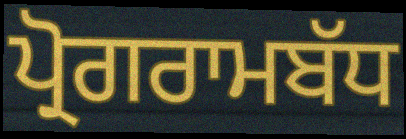
ਪ੍ਰੋਗਰਾਮਬੱਧ